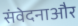
संवेदनाऔर